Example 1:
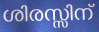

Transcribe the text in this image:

ശിരസ്സിന്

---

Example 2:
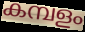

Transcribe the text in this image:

കമ്പളം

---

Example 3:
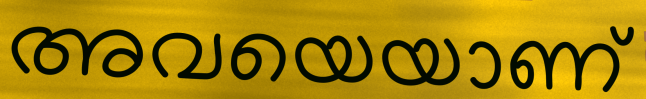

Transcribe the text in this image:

അവയെയാണ്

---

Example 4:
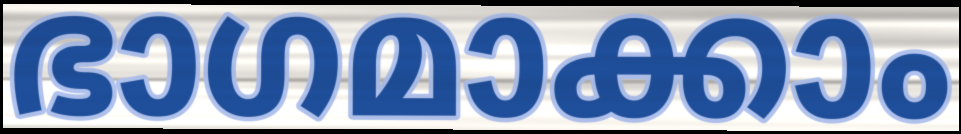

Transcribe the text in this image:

ഭാഗമാക്കാം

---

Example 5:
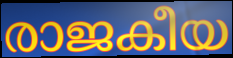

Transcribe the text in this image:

രാജകീയ